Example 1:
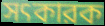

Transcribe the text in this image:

সৎকারক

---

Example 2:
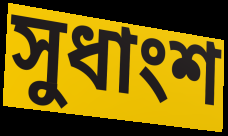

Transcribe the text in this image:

সুধাংশ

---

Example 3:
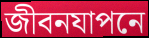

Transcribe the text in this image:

জীবনযাপনে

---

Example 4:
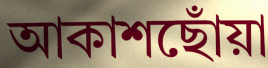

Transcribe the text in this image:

আকাশছোঁয়া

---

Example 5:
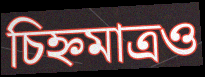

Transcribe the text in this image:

চিহ্নমাত্রও